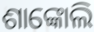
ଶାଙ୍କୋଲି